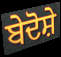
ਬੇਦੋਸ਼ੇ